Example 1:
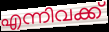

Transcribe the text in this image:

എന്നിവക്ക്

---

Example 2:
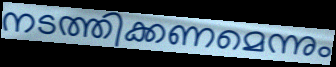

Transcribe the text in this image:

നടത്തിക്കണമെന്നും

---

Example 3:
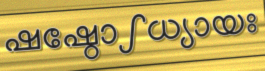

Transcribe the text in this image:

ഷഷ്ഠോഽധ്യായഃ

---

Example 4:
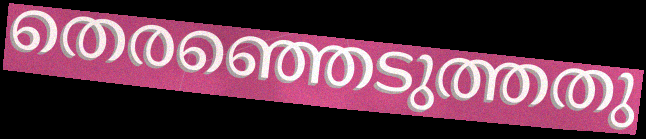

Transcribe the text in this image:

തെരഞ്ഞെടുത്തതു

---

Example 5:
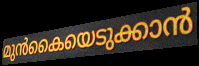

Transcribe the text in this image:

മുൻകൈയെടുക്കാൻ